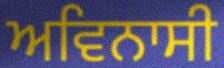
ਅਵਿਨਾਸੀ